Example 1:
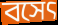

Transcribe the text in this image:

বসেৎ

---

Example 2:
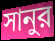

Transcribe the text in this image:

সানুর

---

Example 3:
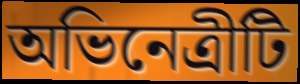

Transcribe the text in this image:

অভিনেত্রীটি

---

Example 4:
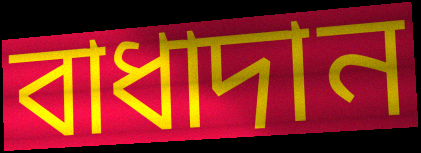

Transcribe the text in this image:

বাধাদান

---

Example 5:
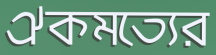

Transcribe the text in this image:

ঐকমত্যের